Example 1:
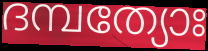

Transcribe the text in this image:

ദമ്പത്യോഃ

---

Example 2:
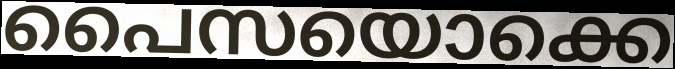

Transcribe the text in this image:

പൈസയൊക്കെ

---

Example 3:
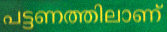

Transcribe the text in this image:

പട്ടണത്തിലാണ്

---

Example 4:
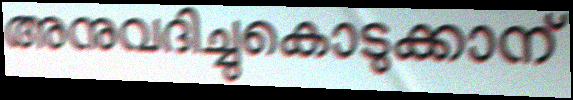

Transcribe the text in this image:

അനുവദിച്ചുകൊടുക്കാന്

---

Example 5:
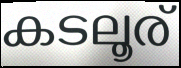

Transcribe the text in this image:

കടലൂര്